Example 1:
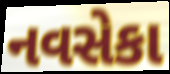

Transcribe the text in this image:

નવસેકા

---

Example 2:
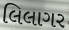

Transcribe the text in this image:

લિલાગર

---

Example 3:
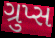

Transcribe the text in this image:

ગ્રુપ્સ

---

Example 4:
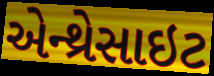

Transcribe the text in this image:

એન્થ્રેસાઇટ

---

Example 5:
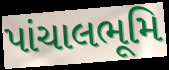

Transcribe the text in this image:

પાંચાલભૂમિ